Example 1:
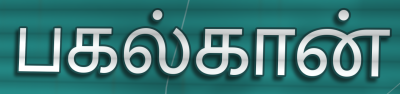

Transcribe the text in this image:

பகல்கான்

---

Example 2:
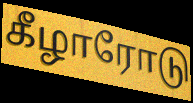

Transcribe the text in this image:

கீழாரோடு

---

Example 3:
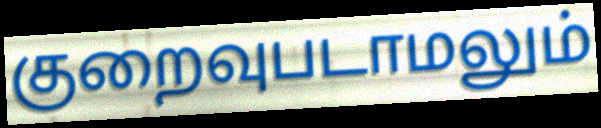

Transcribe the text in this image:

குறைவுபடாமலும்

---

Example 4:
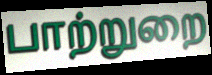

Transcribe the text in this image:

பாற்றுறை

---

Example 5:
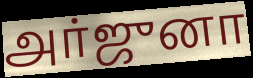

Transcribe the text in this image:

அர்ஜுனா